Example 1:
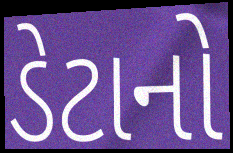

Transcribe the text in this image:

ડેટાનો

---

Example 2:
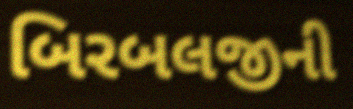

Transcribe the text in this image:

બિરબલજીની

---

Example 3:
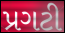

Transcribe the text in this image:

પ્રગટી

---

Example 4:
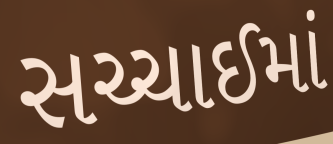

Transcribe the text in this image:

સચ્ચાઈમાં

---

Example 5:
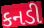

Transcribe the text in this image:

કનડી